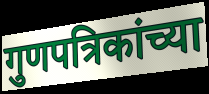
गुणपत्रिकांच्या